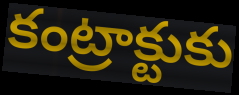
కంట్రాక్టుకు